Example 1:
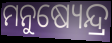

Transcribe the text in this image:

ମନୁଷ୍ୟେନ୍ଦ୍ର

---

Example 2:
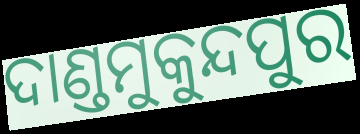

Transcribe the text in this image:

ଦାଣ୍ଡମୁକୁନ୍ଦପୁର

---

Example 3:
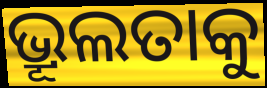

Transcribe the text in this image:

ଭ୍ରୂଲତାକୁ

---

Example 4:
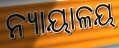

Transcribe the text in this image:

ନ୍ଯାୟାଳୟ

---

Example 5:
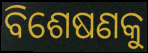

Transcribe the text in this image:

ବିଶେଷଣକୁ